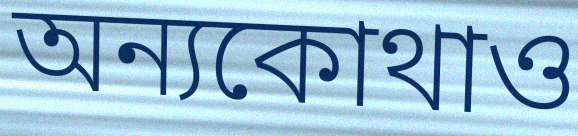
অন্যকোথাও